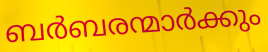
ബർബരന്മാർക്കും